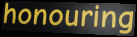
honouring